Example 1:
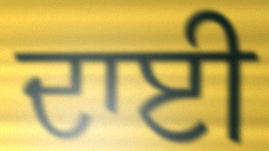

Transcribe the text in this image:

ਦਾਈ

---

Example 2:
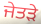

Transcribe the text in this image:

ਜੇਤੜੇ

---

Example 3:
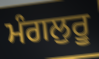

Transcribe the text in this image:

ਮੰਗਲੁਰੂ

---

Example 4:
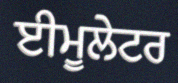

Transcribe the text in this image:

ਈਮੂਲੇਟਰ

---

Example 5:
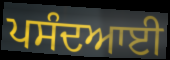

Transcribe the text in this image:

ਪਸੰਦਆਈ